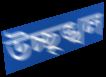
উচ্ছৃঙ্খল